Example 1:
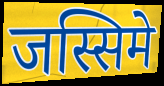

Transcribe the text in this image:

जस्सिमे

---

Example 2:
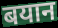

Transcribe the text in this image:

बयान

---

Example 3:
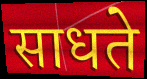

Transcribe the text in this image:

साधते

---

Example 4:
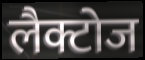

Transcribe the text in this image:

लैक्टोज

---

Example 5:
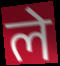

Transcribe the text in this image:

ले